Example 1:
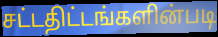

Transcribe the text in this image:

சட்டதிட்டங்களின்படி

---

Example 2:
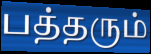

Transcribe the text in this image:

பத்தரும்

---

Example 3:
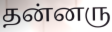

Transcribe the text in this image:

தன்னரு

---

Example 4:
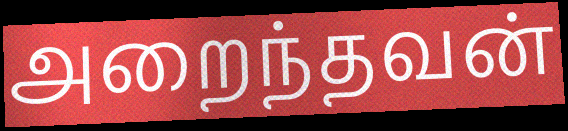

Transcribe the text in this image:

அறைந்தவன்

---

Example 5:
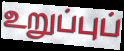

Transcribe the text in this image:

உறுப்புப்